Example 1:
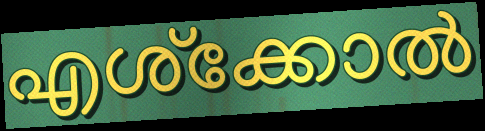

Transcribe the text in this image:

എശ്ക്കോൽ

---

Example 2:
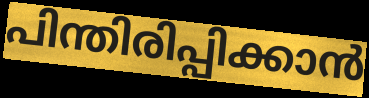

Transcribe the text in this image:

പിന്തിരിപ്പിക്കാൻ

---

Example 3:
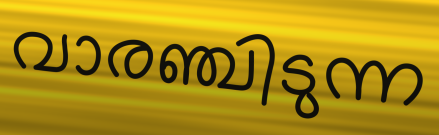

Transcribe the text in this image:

വാരഞ്ചിടുന്ന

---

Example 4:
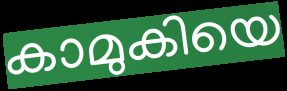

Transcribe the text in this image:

കാമുകിയെ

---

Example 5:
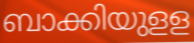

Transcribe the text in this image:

ബാക്കിയുളള